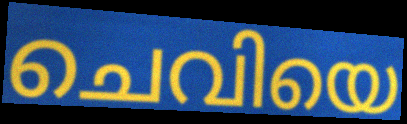
ചെവിയെ